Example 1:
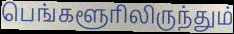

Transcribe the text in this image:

பெங்களூரிலிருந்தும்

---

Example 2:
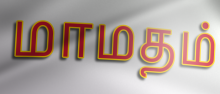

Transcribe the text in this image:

மாமதம்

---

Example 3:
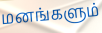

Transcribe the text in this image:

மனங்களும்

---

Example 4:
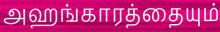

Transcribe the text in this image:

அஹங்காரத்தையும்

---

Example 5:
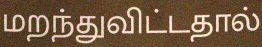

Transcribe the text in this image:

மறந்துவிட்டதால்